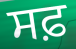
ਸਫ਼